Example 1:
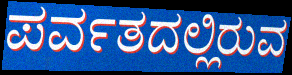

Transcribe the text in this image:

ಪರ್ವತದಲ್ಲಿರುವ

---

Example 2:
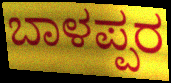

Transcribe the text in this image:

ಬಾಳಪ್ಪರ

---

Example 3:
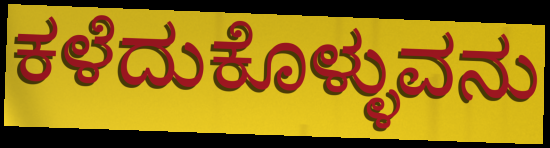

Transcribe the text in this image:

ಕಳೆದುಕೊಳ್ಳುವನು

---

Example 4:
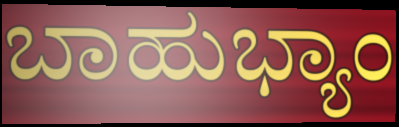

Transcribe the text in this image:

ಬಾಹುಭ್ಯಾಂ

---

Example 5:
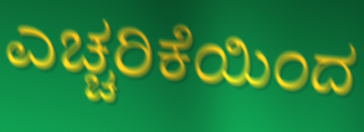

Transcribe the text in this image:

ಎಚ್ಚರಿಕೆಯಿಂದ